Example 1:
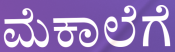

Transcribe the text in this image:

ಮೆಕಾಲೆಗೆ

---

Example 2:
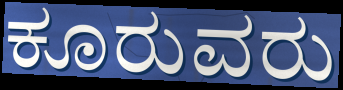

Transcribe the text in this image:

ಕೂರುವರು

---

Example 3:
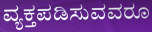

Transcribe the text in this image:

ವ್ಯಕ್ತಪಡಿಸುವವರೂ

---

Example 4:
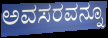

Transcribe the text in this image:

ಅವಸರವನ್ನೂ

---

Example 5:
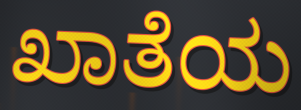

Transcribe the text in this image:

ಖಾತೆಯ